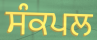
ਸੰਕਪਲ